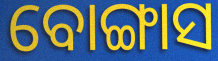
ବୋଙ୍ଗାସ